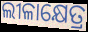
ଲୀଳାକ୍ଷେତ୍ର